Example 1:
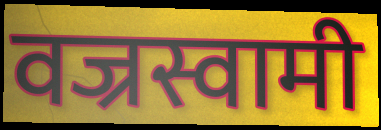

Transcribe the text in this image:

वज्रस्वामी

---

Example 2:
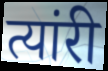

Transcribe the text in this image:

त्यांरी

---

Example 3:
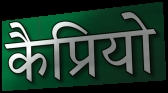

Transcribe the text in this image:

कैप्रियो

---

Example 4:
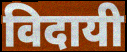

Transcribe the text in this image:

विदायी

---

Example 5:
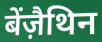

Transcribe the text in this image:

बेंज़ैथिन